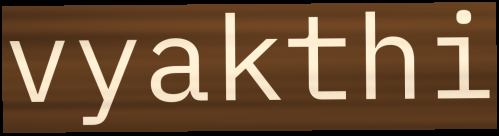
vyakthi